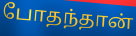
போதந்தான்